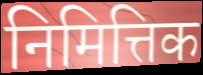
निमित्तिक